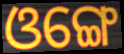
ଓଙ୍ଗେ